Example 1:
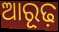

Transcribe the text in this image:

ଆରୂଢ଼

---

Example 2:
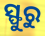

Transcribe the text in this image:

ସ୍ଫୁରୁ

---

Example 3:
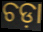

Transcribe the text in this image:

ଚଡ଼ା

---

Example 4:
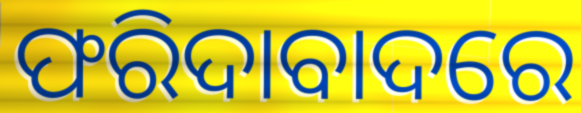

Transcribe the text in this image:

ଫରିଦାବାଦରେ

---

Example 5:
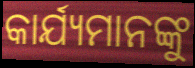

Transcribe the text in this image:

କାର୍ଯ୍ୟମାନଙ୍କୁ